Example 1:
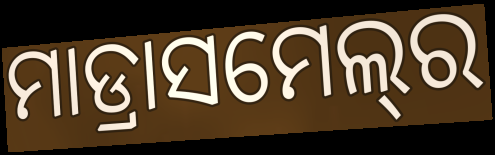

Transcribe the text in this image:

ମାଡ୍ରାସମେଲ୍‍ର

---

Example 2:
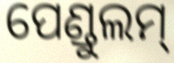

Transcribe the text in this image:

ପେଣ୍ଡୁଲମ୍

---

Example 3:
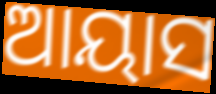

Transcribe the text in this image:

ଆୟାସ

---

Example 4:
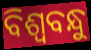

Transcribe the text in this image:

ବିଶ୍ୱବନ୍ଧୁ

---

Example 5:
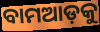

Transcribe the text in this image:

ବାମଆଡ଼କୁ